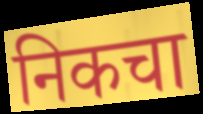
निकचा